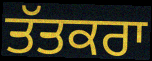
ਤੱਤਕਰਾ